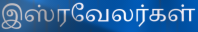
இஸ்ரவேலர்கள்